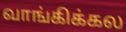
வாங்கிக்கல